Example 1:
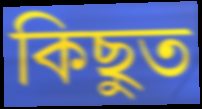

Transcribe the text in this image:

কিছুত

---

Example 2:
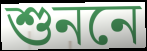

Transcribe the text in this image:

শুননে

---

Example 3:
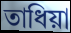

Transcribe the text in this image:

তাধিয়া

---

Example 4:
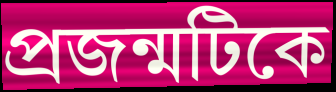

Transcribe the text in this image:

প্রজন্মটিকে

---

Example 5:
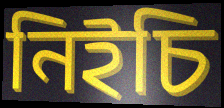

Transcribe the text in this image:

নিইচি